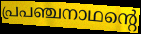
പ്രപഞ്ചനാഥന്റെ